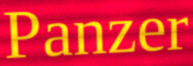
Panzer